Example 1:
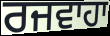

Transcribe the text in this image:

ਰਜਵਾਹਾ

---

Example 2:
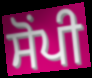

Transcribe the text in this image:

ਸੋੰਪੀ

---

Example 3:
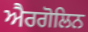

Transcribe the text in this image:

ਐਰਗੋਲਿਨ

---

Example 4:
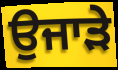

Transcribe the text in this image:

ਉਜਾੜੇ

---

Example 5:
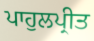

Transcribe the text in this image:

ਪਾਹੁਲਪ੍ਰੀਤ